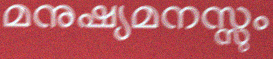
മനുഷ്യമനസ്സും